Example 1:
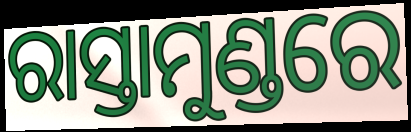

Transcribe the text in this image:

ରାସ୍ତାମୁଣ୍ଡରେ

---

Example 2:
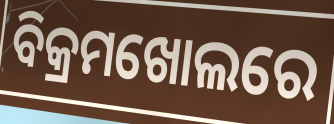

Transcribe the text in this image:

ବିକ୍ରମଖୋଲରେ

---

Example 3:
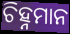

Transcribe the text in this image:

ଚିହ୍ନମାନ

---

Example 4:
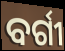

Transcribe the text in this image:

ବର୍ଗୀ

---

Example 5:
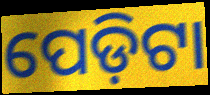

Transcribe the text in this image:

ପେଡ଼ିଟା